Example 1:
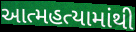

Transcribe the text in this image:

આત્મહત્યામાંથી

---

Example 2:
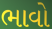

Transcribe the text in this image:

ભાવો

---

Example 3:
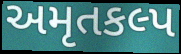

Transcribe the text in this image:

અમૃતકલ્પ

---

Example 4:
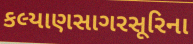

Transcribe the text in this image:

કલ્યાણસાગરસૂરિના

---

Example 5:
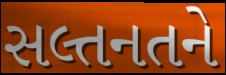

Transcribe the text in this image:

સલ્તનતને